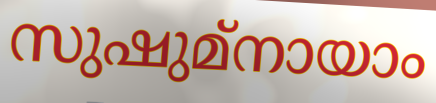
സുഷുമ്നായാം